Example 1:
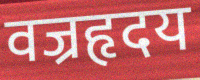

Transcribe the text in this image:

वज्रहृदय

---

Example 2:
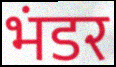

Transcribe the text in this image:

भंडर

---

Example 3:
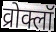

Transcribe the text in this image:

व्रोक्लॉ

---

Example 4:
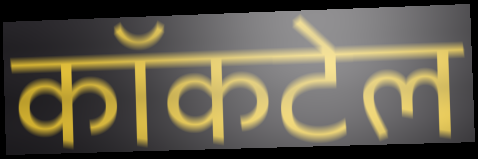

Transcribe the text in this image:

कॉकटेल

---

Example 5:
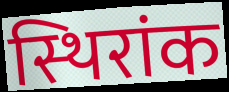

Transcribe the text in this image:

स्थिरांक